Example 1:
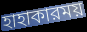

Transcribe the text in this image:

হাহাকারময়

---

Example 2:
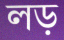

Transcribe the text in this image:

লড়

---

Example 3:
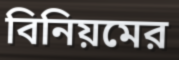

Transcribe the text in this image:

বিনিয়মের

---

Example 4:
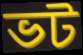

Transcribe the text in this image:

ভট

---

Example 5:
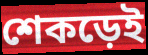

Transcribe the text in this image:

শেকড়েই